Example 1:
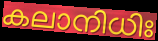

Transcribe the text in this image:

കലാനിധിഃ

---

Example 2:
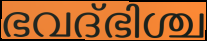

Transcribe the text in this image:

ഭവദ്ഭിശ്ച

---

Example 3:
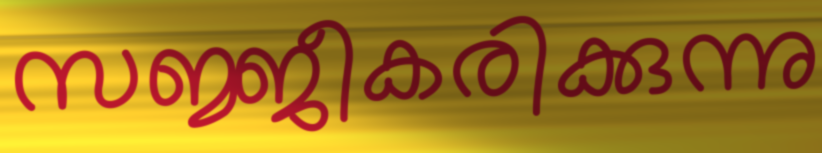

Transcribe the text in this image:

സജ്ജീകരിക്കുന്നു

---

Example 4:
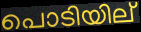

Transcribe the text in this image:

പൊടിയില്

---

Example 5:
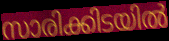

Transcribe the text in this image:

സാരിക്കിടയിൽ